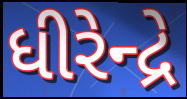
ધીરેન્દ્રે